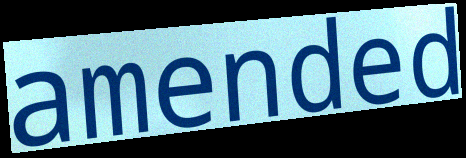
amended